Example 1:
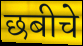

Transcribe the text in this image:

छबीचे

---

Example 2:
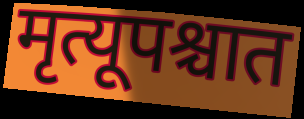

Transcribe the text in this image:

मृत्यूपश्चात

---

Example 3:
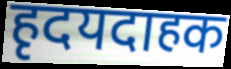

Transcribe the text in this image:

हृदयदाहक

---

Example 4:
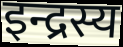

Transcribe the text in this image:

इन्द्रस्य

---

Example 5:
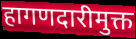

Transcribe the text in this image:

हागणदारीमुक्त